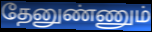
தேனுண்ணும்